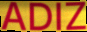
ADIZ